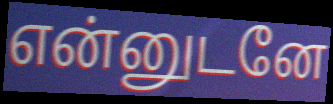
என்னுடனே